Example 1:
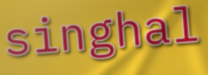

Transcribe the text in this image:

singhal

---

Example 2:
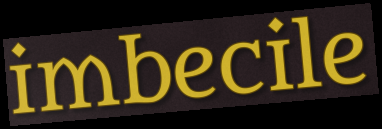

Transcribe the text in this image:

imbecile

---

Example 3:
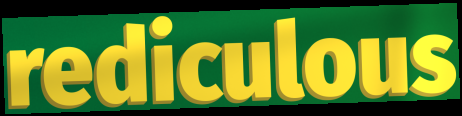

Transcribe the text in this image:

rediculous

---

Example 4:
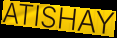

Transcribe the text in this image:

ATISHAY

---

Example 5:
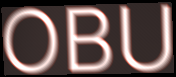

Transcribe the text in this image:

OBU